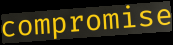
compromise